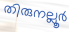
തിരുനല്ലൂർ